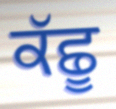
ਕੱਛੂ